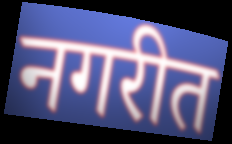
नगरीत